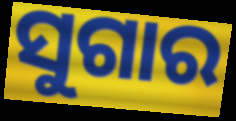
ସୁଗାର